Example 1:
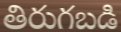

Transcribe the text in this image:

తిరుగబడి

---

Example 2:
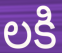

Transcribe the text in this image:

లకి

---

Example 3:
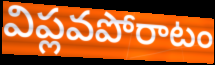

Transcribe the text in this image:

విప్లవపోరాటం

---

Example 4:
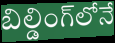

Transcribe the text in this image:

బిల్డింగ్‌లోనే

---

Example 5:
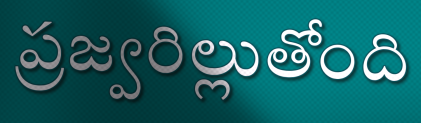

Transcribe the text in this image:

ప్రజ్వరిల్లుతోంది